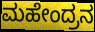
ಮಹೇಂದ್ರನ